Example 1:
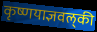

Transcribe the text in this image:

कृष्णयाज्ञवल्की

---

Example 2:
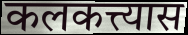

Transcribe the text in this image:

कलकत्त्यास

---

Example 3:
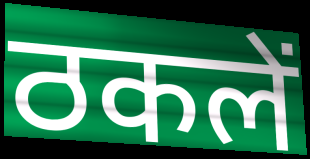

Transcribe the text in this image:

ठकलें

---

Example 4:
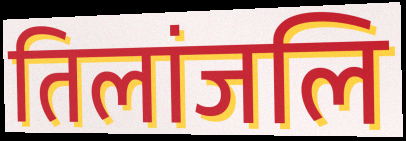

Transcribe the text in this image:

तिलांजलि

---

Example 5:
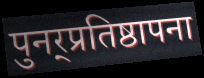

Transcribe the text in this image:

पुनर्प्रतिष्ठापना